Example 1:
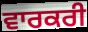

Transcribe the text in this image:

ਵਾਰਕਰੀ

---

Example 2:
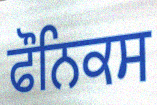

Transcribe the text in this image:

ਫੌਨਿਕਸ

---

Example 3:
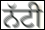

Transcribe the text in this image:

ਨੱਟੀ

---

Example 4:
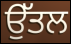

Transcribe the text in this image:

ਉੱਤਲ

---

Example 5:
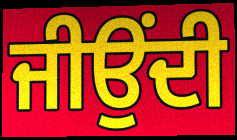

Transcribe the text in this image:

ਜੀਉਂਦੀ